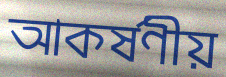
আকৰ্ষণীয়